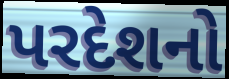
પરદેશનો